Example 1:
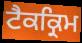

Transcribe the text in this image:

ਟੈਕਕ੍ਰਿਮ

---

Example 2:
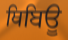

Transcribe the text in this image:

ਥਿਬਿਊ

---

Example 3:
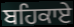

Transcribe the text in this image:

ਬਹਿਕਾਏ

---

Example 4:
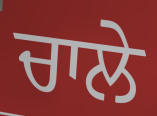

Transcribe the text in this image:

ਚਾਲੇ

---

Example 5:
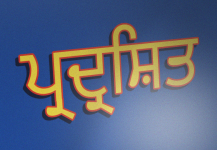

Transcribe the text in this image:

ਪ੍ਰਦ੍ਰਸ਼ਿਤ